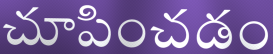
చూపించడం